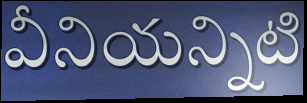
వీనియన్నిటి